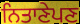
ਨਿਤਾਣੇਪਣ